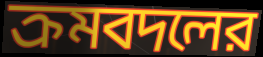
ক্রমবদলের